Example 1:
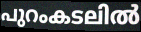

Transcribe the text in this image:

പുറംകടലിൽ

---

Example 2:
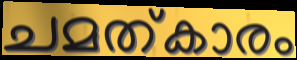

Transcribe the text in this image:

ചമത്കാരം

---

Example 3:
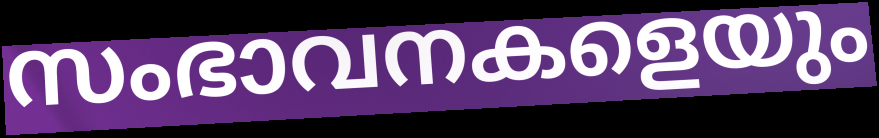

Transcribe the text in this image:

സംഭാവനകളെയും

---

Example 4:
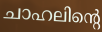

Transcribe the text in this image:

ചാഹലിന്റെ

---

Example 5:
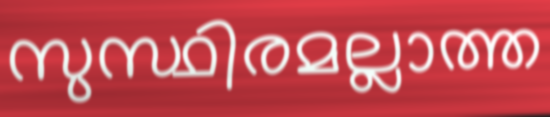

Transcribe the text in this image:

സുസ്ഥിരമല്ലാത്ത